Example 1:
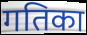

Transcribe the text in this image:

गतिका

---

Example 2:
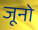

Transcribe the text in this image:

जूनो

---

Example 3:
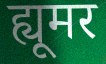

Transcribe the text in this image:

ह्यूमर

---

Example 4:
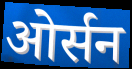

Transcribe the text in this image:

ओर्सन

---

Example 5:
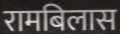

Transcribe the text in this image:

रामबिलास